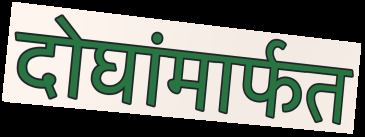
दोघांमार्फत